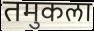
तमुकला